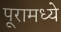
पूरामध्ये